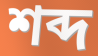
শব্দ